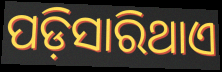
ପଡ଼ିସାରିଥାଏ